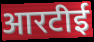
आरटीई